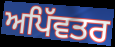
ਅਪਿੱਵਤਰ